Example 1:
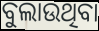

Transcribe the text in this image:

ବୁଲାଉଥିବା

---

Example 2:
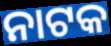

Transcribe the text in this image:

ନାଟକ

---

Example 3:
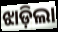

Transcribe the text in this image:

ଝାଡ଼ିଲା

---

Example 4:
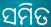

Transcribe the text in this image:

ସମିତ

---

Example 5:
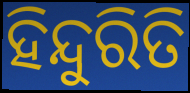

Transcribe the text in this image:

ହିନ୍ଦୁରିତି